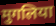
मुगलिया